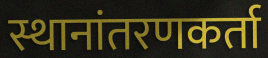
स्थानांतरणकर्ता